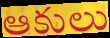
ఆకులు